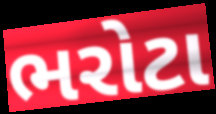
ભરોટા